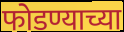
फोडण्याच्या